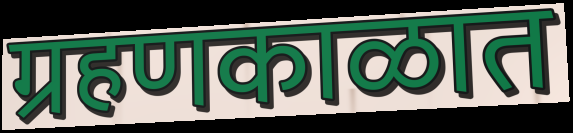
ग्रहणकाळात